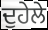
ਦੁਹੇਲੇ